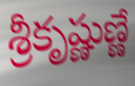
శ్రీకృష్ణుణ్ణే